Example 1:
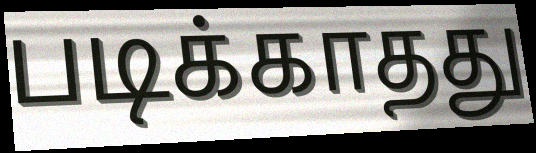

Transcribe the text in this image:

படிக்காதது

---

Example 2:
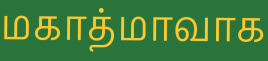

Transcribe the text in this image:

மகாத்மாவாக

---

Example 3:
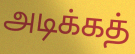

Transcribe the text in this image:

அடிக்கத்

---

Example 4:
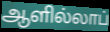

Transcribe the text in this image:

ஆளில்லாப்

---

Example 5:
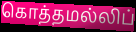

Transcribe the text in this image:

கொத்தமல்லிப்